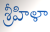
శ్రీహిళా